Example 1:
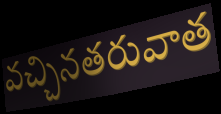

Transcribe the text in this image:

వచ్చినతరువాత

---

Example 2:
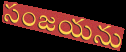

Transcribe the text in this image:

సంజయను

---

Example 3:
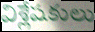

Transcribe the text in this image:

విశ్లేషకులు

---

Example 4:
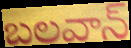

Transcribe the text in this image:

బలవాన్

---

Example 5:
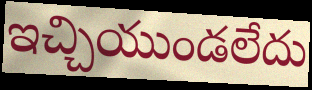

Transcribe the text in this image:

ఇచ్చియుండలేదు